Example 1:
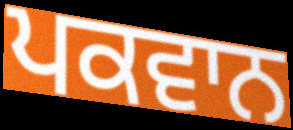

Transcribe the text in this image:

ਪਕਵਾਨ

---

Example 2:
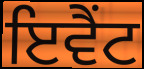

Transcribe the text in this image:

ਇਵੈਂਟ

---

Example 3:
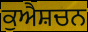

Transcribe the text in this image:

ਕੁਐਸ਼ਚਨ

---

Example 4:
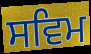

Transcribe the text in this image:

ਸਵਿਮ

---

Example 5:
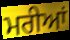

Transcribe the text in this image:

ਮਰੀਆਂ